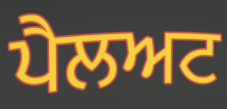
ਪੈਲਅਟ